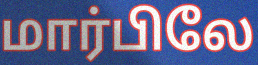
மார்பிலே